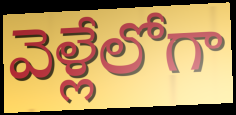
వెళ్లేలోగా